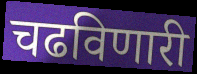
चढविणारी